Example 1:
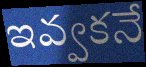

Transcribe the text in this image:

ఇవ్వకనే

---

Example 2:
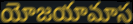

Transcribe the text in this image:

యోజయామాస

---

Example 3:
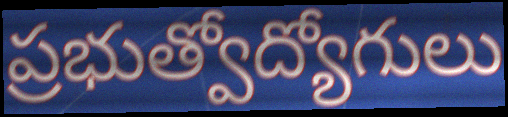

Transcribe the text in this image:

ప్రభుత్వోద్యోగులు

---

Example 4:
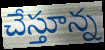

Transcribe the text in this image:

చేస్తూన్న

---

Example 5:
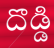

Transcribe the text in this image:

దొడ్డి